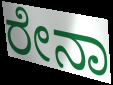
ರೇನಾ